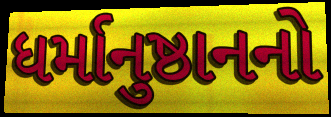
ધર્માનુષ્ઠાનનો